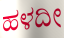
ಹಳದೀ